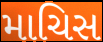
માચિસ